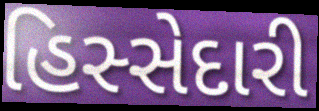
હિસ્સેદારી